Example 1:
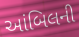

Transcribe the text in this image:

આંબિલની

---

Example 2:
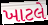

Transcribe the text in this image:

ખાટલે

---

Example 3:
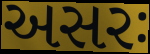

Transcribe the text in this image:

અસરઃ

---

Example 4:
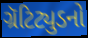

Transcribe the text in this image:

ગ્રૅટિટ્યુડનો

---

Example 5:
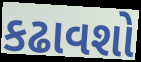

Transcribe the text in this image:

કઢાવશો